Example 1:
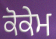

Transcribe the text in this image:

ਕੋਕੇਮ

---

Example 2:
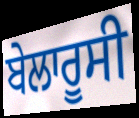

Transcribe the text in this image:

ਬੇਲਾਰੂਸੀ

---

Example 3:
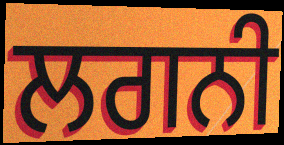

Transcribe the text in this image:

ਲਗਨੀ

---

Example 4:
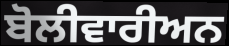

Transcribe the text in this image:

ਬੋਲੀਵਾਰੀਅਨ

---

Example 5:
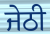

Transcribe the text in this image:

ਜੇਠੀ